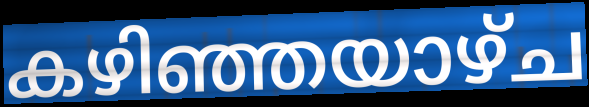
കഴിഞ്ഞയാഴ്ച